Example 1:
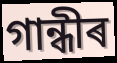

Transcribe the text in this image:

গান্ধীৰ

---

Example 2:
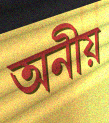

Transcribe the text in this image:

অনীয়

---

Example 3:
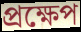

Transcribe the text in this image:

প্ৰক্ষেপ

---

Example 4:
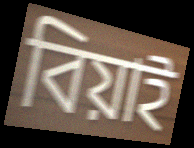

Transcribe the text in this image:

বিয়াই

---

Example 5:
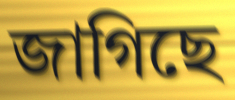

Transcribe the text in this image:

জাগিছে